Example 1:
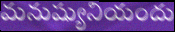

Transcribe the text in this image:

మనుష్యునియందు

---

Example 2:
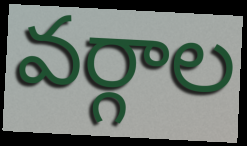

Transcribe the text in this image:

వర్గాల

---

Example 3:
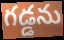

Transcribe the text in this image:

గడ్డను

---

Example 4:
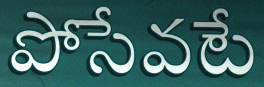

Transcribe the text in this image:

పోసేవటే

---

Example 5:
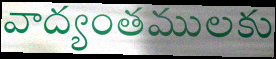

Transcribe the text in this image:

వాద్యంతములకు